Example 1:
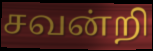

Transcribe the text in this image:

சவன்றி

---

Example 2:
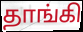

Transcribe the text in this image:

தாங்கி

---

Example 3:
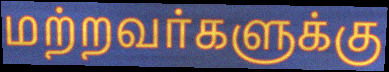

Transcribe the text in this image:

மற்றவர்களுக்கு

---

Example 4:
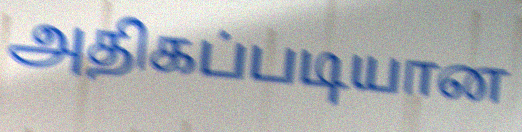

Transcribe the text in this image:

அதிகப்படியான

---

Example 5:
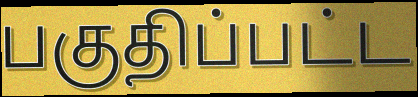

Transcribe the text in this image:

பகுதிப்பட்ட